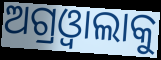
ଅଗ୍ରଓ୍ୱାଲାକୁ